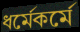
ধর্মেকর্মে